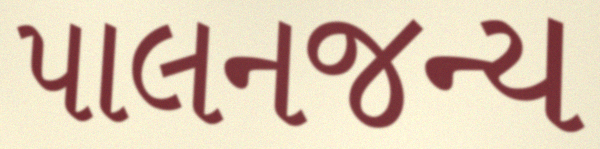
પાલનજન્ય